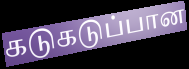
கடுகடுப்பான